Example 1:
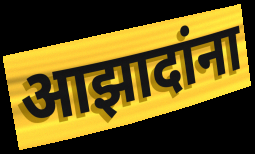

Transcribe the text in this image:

आझादांना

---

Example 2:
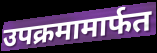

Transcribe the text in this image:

उपक्रमामार्फत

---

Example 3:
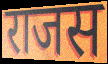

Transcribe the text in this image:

राजस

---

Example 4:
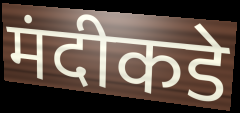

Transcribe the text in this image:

मंदीकडे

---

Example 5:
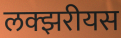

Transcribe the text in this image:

लक्झरीयस